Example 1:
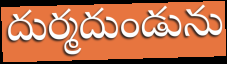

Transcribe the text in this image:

దుర్మదుండును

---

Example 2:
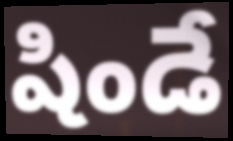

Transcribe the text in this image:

షిండే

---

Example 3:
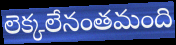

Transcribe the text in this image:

లెక్కలేనంతమంది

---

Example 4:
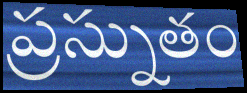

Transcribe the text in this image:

ప్రస్నుతం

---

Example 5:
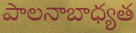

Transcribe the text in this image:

పాలనాబాధ్యత